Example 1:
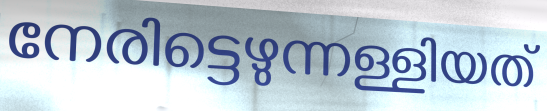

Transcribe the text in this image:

നേരിട്ടെഴുന്നള്ളിയത്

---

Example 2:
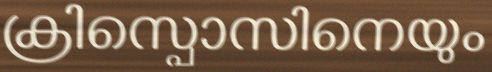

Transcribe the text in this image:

ക്രിസ്പൊസിനെയും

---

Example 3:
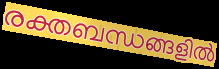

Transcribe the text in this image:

രക്തബന്ധങ്ങളിൽ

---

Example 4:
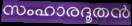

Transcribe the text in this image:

സംഹാരദൂതൻ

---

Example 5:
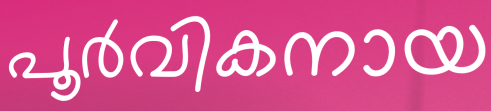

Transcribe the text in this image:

പൂർവികനായ